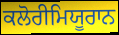
ਕਲੋਰੀਮਿਯੂਰਾਨ